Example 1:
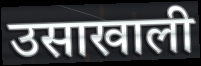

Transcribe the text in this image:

उसाखाली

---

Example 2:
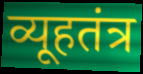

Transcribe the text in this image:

व्यूहतंत्र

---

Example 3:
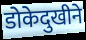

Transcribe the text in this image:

डोकेदुखीने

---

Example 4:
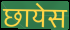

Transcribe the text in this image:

छायेस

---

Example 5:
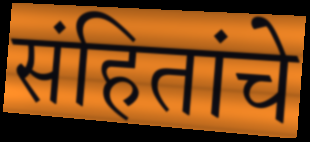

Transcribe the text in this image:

संहितांचे